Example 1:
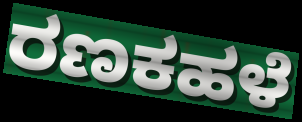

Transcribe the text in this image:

ರಣಕಹಳೆ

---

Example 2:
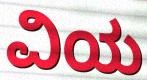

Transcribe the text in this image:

ವಿಯ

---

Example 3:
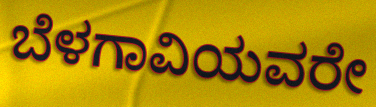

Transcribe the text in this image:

ಬೆಳಗಾವಿಯವರೇ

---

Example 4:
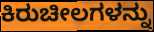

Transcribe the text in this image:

ಕಿರುಚೀಲಗಳನ್ನು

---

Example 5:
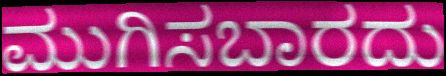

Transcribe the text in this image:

ಮುಗಿಸಬಾರದು